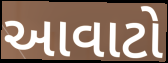
આવાટો